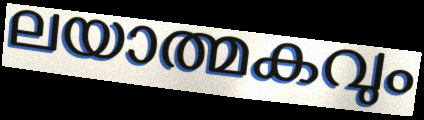
ലയാത്മകവും